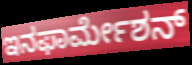
ಇನಫಾರ್ಮೇಶನ್